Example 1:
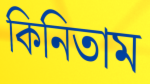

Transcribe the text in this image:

কিনিতাম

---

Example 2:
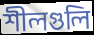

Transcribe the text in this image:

শীলগুলি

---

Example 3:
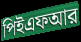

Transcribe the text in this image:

পিইএফআর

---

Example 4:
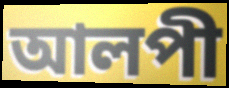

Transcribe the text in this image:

আলপী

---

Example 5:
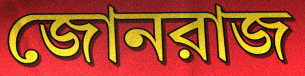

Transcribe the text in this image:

জোনরাজ